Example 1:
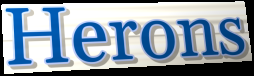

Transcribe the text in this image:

Herons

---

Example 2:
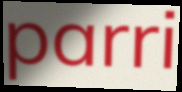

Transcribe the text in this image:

parri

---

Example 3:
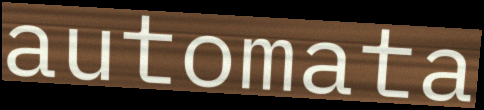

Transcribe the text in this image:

automata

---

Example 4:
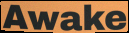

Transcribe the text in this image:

Awake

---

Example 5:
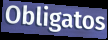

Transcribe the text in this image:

Obligatos